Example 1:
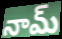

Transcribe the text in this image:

నామ్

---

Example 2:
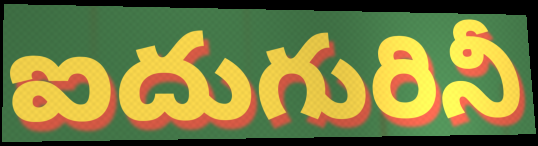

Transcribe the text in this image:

ఐదుగురినీ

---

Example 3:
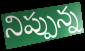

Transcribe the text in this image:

నిప్పున్న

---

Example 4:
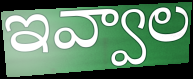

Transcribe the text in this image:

ఇవ్వాల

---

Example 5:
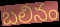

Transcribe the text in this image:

బలినం